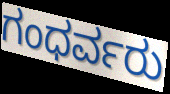
ಗಂಧರ್ವರು